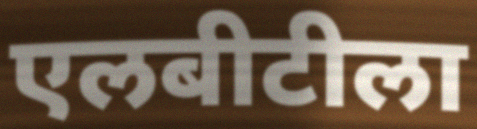
एलबीटीला